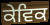
ਕੇਵਿਕ